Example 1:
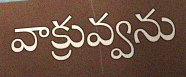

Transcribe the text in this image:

వాక్రువ్వను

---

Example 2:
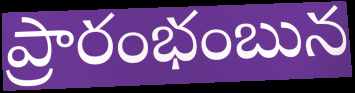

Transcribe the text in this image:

ప్రారంభంబున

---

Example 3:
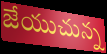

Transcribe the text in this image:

జేయుచున్న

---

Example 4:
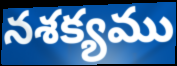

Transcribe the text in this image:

నశక్యము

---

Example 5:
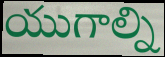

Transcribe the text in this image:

యుగాల్ని